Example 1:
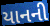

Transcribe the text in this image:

યાનની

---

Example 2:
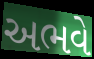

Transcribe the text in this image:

અભવે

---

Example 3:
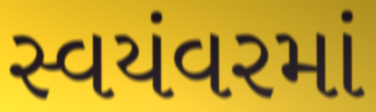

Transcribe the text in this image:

સ્વયંવરમાં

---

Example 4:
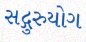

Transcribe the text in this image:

સદ્ગુરુયોગ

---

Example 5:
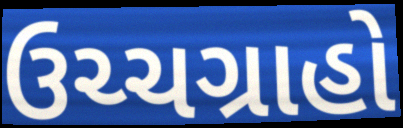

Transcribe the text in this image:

ઉચ્ચગ્રાહો